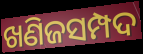
ଖଣିଜସମ୍ପଦ